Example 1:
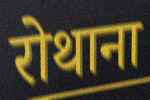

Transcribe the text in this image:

रोथाना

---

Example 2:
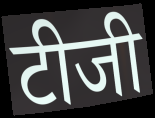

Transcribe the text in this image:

टीजी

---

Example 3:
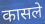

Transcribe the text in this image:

कासले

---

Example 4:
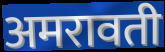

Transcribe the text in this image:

अमरावती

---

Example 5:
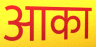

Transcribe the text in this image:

आका